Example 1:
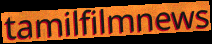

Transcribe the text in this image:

tamilfilmnews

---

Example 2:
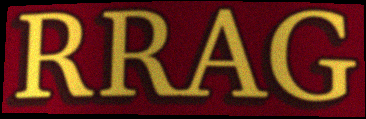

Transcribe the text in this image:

RRAG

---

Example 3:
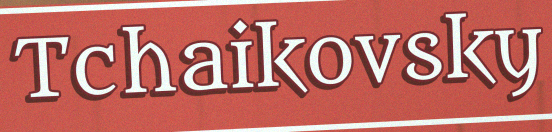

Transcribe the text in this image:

Tchaikovsky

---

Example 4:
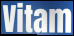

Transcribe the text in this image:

Vitam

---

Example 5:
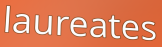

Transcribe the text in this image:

laureates